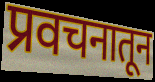
प्रवचनातून